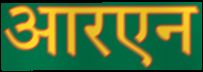
आरएन